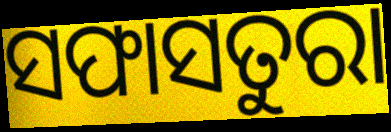
ସଫାସତୁରା